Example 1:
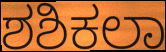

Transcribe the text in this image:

ಶಶಿಕಲಾ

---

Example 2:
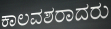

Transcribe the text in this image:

ಕಾಲವಶರಾದರು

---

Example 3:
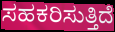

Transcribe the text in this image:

ಸಹಕರಿಸುತ್ತಿದೆ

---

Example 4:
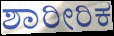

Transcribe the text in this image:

ಶಾರೀರಿಕ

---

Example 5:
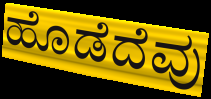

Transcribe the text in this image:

ಹೊಡೆದೆವು